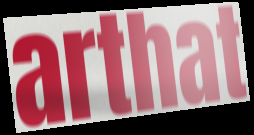
arthat